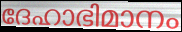
ദേഹാഭിമാനം